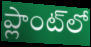
ప్లాంట్‌లో